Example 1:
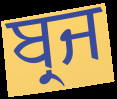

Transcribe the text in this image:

ਬ੍ਰਜ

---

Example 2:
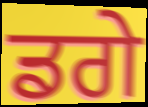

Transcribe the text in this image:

ਡਗੇ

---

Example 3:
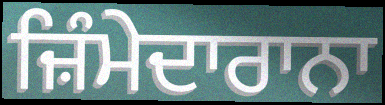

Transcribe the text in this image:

ਜ਼ਿੰਮੇਦਾਰਾਨਾ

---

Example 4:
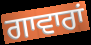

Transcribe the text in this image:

ਗਾਵਾਰਾਂ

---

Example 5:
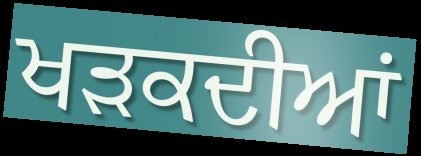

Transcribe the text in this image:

ਖੜਕਦੀਆਂ